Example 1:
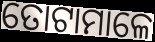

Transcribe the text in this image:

ତୋଟାମାଳେ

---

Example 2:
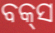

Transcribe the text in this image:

ବକ୍‌ସ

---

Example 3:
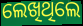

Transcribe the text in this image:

ଲେଖିଥିଲେ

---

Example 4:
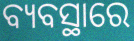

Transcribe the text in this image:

ବ୍ୟବସ୍ଥାରେ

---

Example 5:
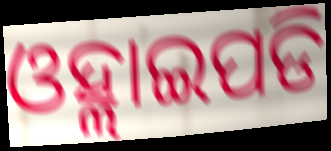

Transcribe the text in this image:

ଓହ୍ଲାଇପଡି